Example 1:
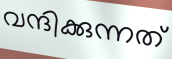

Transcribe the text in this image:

വന്ദിക്കുന്നത്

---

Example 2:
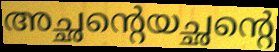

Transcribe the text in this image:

അച്ഛന്റെയച്ഛന്റെ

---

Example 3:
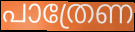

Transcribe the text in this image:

പാത്രേണ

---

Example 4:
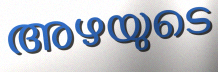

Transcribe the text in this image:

അഴയുടെ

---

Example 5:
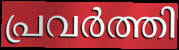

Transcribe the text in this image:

പ്രവർത്തി